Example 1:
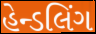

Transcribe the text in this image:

હેન્ડલિંગ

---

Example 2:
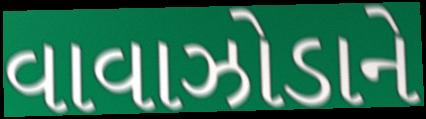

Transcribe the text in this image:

વાવાઝોડાને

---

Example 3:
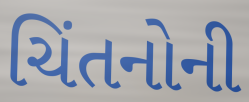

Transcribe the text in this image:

ચિંતનોની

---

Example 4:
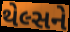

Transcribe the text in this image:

થેલ્સને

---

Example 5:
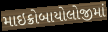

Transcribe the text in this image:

માઇક્રોબાયોલોજીમાં